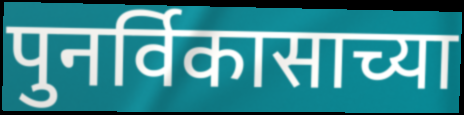
पुनर्विकासाच्या